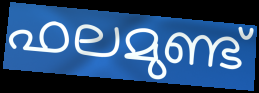
ഫലമുണ്ട്